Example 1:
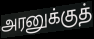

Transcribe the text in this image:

அரனுக்குத்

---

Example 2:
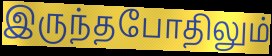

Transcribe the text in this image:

இருந்தபோதிலும்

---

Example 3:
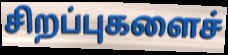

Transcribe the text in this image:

சிறப்புகளைச்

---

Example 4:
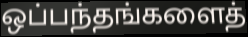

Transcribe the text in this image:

ஒப்பந்தங்களைத்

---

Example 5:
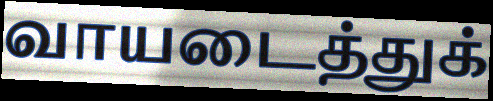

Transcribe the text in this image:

வாயடைத்துக்